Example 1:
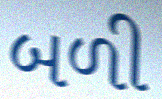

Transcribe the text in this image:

બળી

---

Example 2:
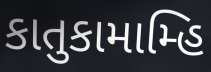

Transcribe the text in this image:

કાતુકામામ્હિ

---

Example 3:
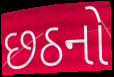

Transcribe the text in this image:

છઠનો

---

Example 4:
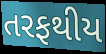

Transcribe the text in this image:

તરફથીય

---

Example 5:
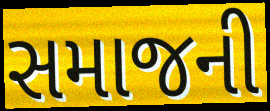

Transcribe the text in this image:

સમાજની